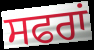
ਸਫਰਾਂ